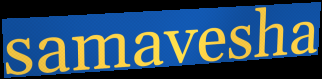
samavesha